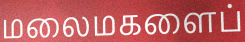
மலைமகளைப்